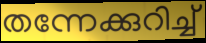
തന്നേക്കുറിച്ച്